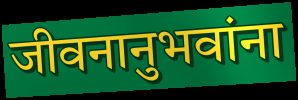
जीवनानुभवांना